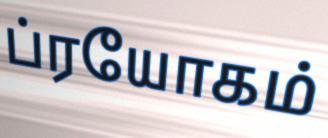
ப்ரயோகம்